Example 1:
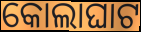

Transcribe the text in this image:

କୋଲାଘାଟ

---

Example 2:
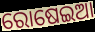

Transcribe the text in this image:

ରୋଷେଇଆ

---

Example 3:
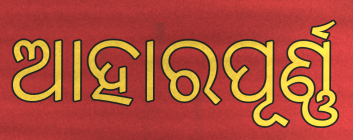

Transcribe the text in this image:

ଆହାରପୂର୍ଣ୍ଣ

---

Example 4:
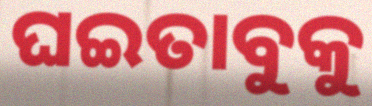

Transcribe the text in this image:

ଘଇତାବୁକୁ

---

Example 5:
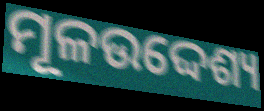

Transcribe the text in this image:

ମୂଳଉଦ୍ଦେଶ୍ୟ